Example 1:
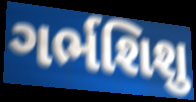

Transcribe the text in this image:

ગર્ભશિશુ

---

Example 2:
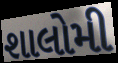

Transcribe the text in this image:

શાલોમી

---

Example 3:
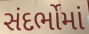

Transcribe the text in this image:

સંદર્ભોમાં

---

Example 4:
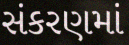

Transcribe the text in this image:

સંકરણમાં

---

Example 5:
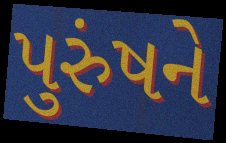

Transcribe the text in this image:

પુરુંષને